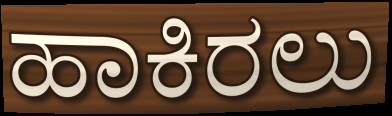
ಹಾಕಿರಲು